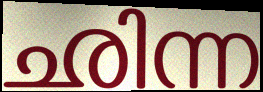
ഛിന്ന